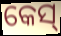
କେସ୍